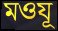
মওযূ